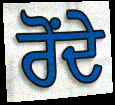
ਰੋਂਦੇ